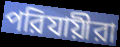
পরিযায়ীরা